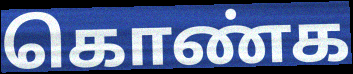
கொண்க